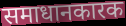
समाधानकारक